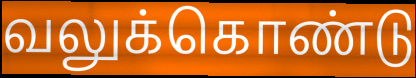
வலுக்கொண்டு